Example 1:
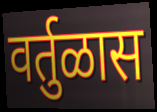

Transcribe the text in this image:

वर्तुळास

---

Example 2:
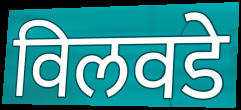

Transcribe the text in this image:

विलवडे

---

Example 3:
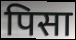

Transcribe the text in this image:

पिसा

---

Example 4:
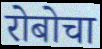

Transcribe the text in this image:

रोबोचा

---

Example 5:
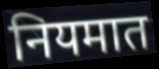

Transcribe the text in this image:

नियमात